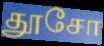
தூசோ